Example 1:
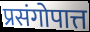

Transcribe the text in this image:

प्रसंगोपात्त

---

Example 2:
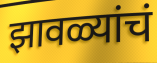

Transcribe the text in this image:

झावळ्यांचं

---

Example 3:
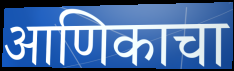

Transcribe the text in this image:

आणिकाचा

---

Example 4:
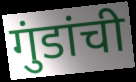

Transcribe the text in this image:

गुंडांची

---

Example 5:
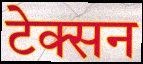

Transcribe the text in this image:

टेक्सन